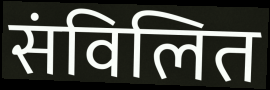
संविलित